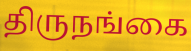
திருநங்கை